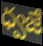
ధ్వజే